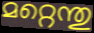
മറ്റെന്തു